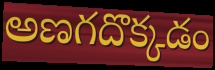
అణగదొక్కడం